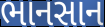
ભાનસાન